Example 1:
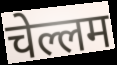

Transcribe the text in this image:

चेल्लम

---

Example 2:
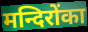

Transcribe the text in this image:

मन्दिरोंका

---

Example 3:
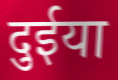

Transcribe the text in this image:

दुईया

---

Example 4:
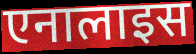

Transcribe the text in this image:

एनालाइस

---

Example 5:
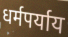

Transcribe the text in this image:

धर्मपर्याय